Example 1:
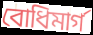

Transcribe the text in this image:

বোধিমার্গ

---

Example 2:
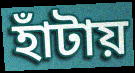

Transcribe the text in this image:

হাঁটায়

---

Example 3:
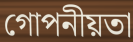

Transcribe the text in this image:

গোপনীয়তা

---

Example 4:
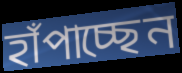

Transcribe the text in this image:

হাঁপাচ্ছেন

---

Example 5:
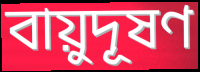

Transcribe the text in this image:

বায়ুদূষণ